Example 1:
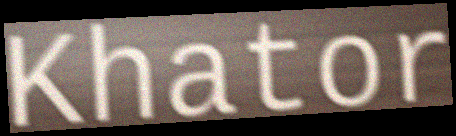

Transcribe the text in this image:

Khator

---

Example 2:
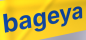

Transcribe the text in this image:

bageya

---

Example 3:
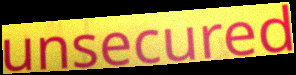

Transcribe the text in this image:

unsecured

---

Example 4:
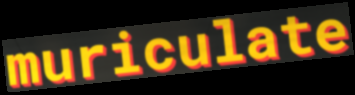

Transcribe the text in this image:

muriculate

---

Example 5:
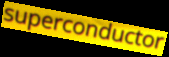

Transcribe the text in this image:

superconductor